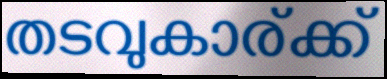
തടവുകാര്ക്ക്